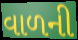
વાળની